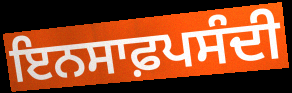
ਇਨਸਾਫ਼ਪਸੰਦੀ